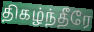
திகழ்ந்தீரே